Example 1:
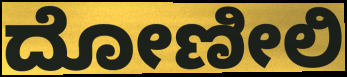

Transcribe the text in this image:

ದೋಣೀಲಿ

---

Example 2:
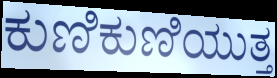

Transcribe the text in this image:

ಕುಣಿಕುಣಿಯುತ್ತ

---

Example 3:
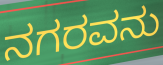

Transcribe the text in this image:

ನಗರವನು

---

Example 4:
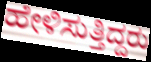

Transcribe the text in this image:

ಹೇಳಿಸುತ್ತಿದ್ದರು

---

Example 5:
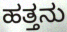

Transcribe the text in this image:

ಹತ್ತನು